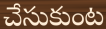
చేసుకుంట